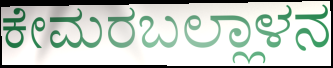
ಕೇಮರಬಲ್ಲಾಳನ